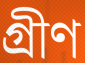
গ্ৰীণ